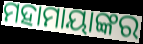
ମହାମାୟାଙ୍କର